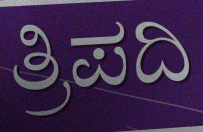
ತ್ರಿಪದಿ